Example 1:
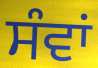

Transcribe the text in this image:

ਸੰਵਾਂ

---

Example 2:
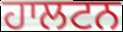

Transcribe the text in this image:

ਹਾਲਟਨ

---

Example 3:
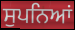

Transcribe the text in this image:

ਸੁਪਨਿਆਂ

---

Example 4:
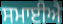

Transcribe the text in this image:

ਸਮਾਈਐ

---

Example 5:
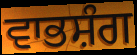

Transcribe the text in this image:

ਵਾਭਸ਼ੰਗ